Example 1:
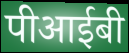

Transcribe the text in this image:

पीआईबी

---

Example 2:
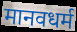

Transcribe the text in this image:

मानवधर्म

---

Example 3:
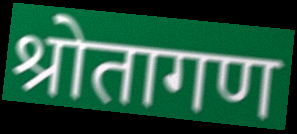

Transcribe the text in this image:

श्रोतागण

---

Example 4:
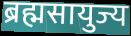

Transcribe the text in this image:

ब्रह्मसायुज्य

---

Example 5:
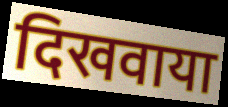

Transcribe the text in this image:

दिखवाया